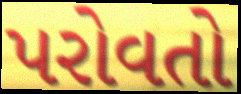
પરોવતો